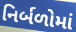
નિર્બળોમાં